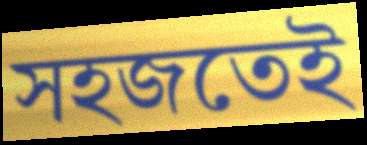
সহজতেই